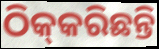
ଠିକ୍‌କରିଛନ୍ତି